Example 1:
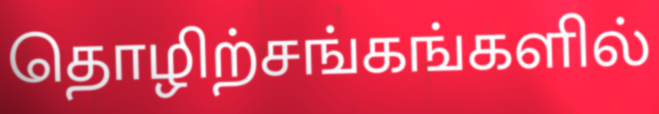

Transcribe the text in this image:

தொழிற்சங்கங்களில்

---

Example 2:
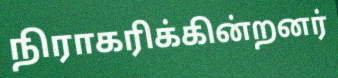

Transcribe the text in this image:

நிராகரிக்கின்றனர்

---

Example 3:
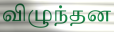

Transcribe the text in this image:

விழுந்தன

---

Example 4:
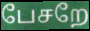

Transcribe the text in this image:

பேசறே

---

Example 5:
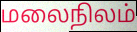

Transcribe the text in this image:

மலைநிலம்